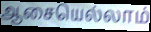
ஆசையெல்லாம்